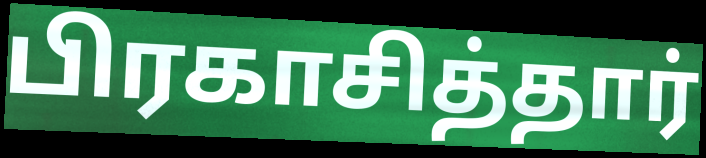
பிரகாசித்தார்